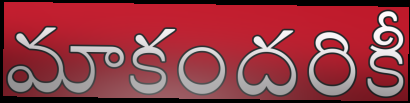
మాకందరికీ